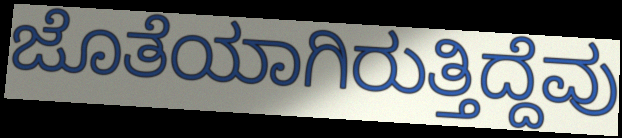
ಜೊತೆಯಾಗಿರುತ್ತಿದ್ದೆವು